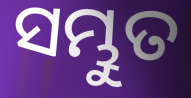
ସମ୍ଭୁତ